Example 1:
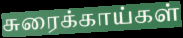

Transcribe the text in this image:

சுரைக்காய்கள்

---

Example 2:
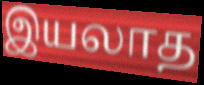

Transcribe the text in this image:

இயலாத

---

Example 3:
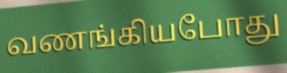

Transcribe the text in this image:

வணங்கியபோது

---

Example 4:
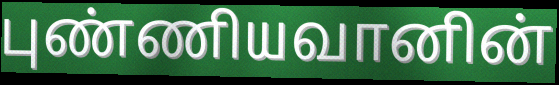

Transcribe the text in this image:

புண்ணியவானின்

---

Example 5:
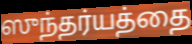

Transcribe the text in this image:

ஸுந்தர்யத்தை